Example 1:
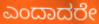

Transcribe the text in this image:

ಎಂದಾದರೇ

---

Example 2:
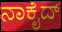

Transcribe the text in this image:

ನಾಕೈದ್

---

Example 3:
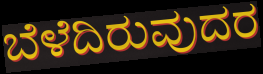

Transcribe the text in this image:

ಬೆಳೆದಿರುವುದರ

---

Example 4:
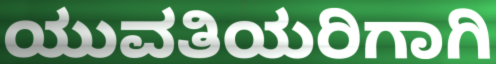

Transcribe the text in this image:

ಯುವತಿಯರಿಗಾಗಿ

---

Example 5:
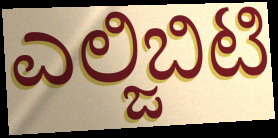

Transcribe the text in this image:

ಎಲ್ಜಿಬಿಟಿ